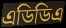
এডিডিএ